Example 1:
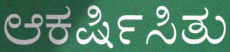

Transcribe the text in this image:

ಆಕರ್ಷಿಸಿತು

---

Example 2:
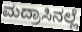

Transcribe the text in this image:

ಮದ್ರಾಸಿನಲ್ಲೆ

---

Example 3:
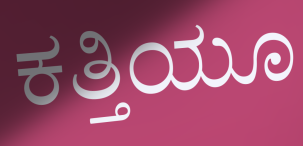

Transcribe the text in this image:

ಕತ್ತಿಯೂ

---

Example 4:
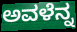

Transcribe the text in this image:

ಅವಳೆನ್ನ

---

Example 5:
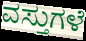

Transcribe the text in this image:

ವಸ್ತುಗಳೆ